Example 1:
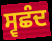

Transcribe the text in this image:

ਸ੍ਵਛੰਦ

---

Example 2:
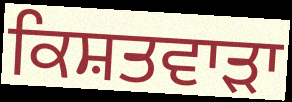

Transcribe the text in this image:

ਕਿਸ਼ਤਵਾੜਾ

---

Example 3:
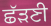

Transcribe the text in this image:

ਛੱੜਣੀ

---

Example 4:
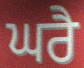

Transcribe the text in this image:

ਘਰੈ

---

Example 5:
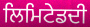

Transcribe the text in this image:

ਲਿਮਿਟੇਡਦੀ